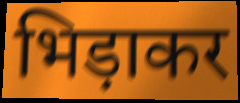
भिड़ाकर